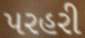
પરહરી